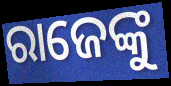
ରାଜେଙ୍କୁ